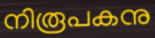
നിരൂപകനു